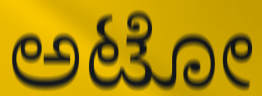
ಅಟೋ